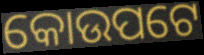
କୋଉପଟେ